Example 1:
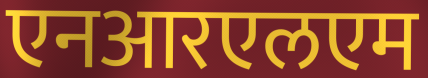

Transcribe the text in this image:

एनआरएलएम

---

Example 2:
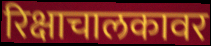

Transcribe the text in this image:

रिक्षाचालकावर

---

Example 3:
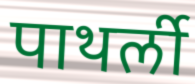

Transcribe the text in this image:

पाथर्ली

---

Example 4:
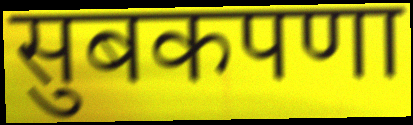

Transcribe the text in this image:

सुबकपणा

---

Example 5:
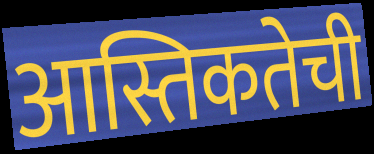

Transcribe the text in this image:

आस्तिकतेची